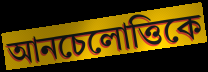
আনচেলোত্তিকে